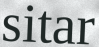
sitar